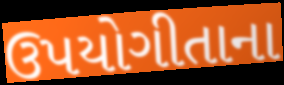
ઉપયોગીતાના